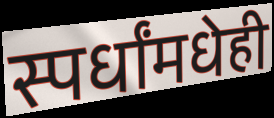
स्पर्धांमधेही